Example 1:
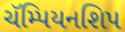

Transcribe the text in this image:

ચૅમ્પિયનશિપ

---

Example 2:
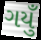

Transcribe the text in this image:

ગયુઁ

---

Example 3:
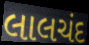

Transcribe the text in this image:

લાલચંદ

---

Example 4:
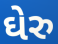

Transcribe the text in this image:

ઘેરુ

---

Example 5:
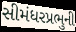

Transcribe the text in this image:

સીમંધરપ્રભુની